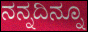
ನನ್ನದಿನ್ನೂ